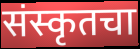
संस्कृतचा